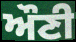
ਔਣੀ